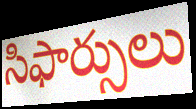
సిఫార్సులు